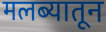
मलब्यातून